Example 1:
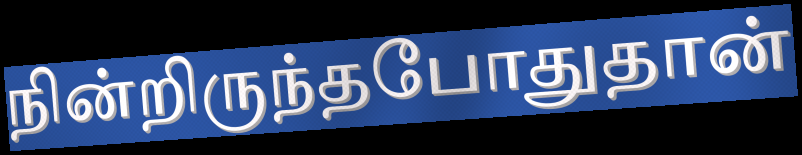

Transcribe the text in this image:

நின்றிருந்தபோதுதான்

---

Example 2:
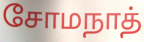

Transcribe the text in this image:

சோமநாத்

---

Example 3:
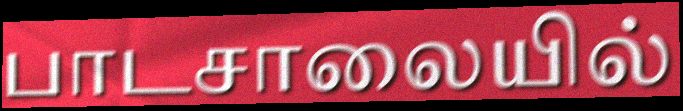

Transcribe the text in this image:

பாடசாலையில்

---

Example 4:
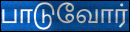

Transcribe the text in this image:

பாடுவோர்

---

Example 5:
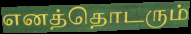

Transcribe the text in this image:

எனத்தொடரும்